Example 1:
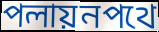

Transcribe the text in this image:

পলায়নপথে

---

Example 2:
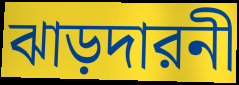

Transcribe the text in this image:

ঝাড়দারনী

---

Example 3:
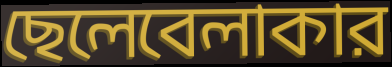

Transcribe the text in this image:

ছেলেবেলাকার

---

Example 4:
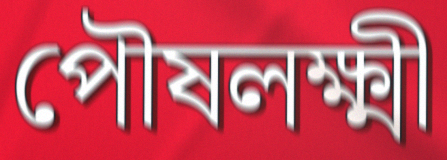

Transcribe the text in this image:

পৌষলক্ষ্মী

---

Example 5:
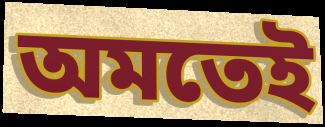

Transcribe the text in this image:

অমতেই